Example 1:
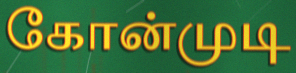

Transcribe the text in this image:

கோன்முடி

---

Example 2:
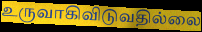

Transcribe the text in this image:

உருவாகிவிடுவதில்லை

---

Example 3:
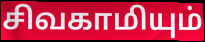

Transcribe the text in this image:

சிவகாமியும்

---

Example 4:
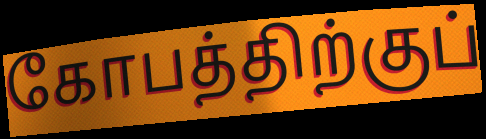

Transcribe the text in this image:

கோபத்திற்குப்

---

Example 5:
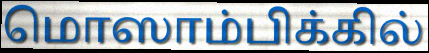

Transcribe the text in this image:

மொஸாம்பிக்கில்